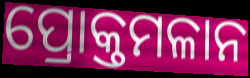
ପ୍ରୋକ୍ତମଳାନ